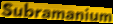
Subramanium